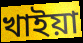
খাইয়া